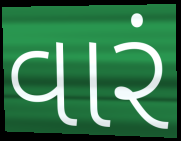
વારં